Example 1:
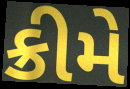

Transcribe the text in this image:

ક્રીમે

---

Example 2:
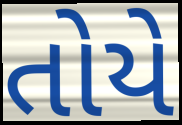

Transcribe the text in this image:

તોયે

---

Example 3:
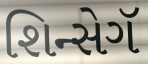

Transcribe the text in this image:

શિન્સેગૅ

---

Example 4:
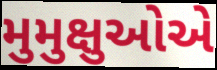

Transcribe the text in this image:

મુમુક્ષુઓએ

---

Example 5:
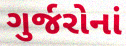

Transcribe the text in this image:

ગુર્જરોનાં